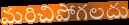
మరిచిపోగలదు